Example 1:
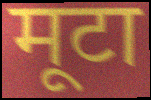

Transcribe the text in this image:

मूटा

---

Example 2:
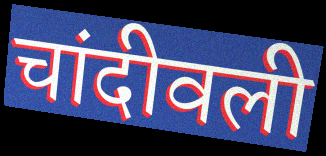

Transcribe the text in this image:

चांदीवली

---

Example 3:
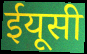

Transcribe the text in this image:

ईयूसी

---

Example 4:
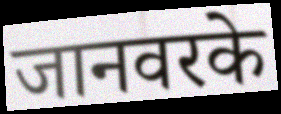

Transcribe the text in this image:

जानवरके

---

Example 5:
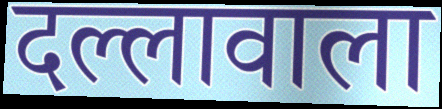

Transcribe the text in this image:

दल्लावाला